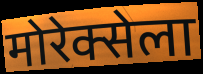
मोरेक्सेला